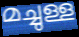
മച്ചുള്ള